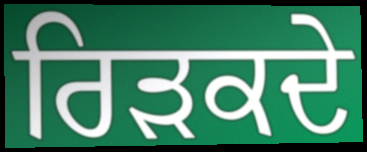
ਰਿੜਕਦੇ